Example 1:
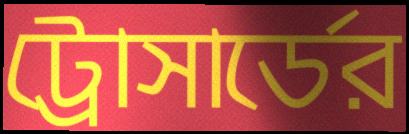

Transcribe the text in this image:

ট্রোসার্ডের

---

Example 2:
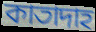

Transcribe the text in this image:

কাতাদাহ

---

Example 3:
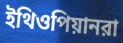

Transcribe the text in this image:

ইথিওপিয়ানরা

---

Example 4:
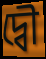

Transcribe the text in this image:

দ্বৌ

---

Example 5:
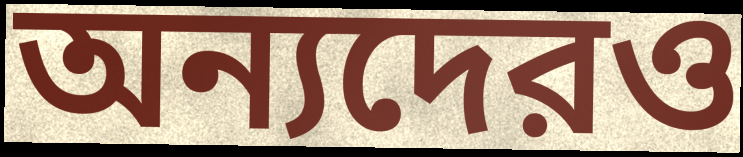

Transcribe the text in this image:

অন্যদেরও